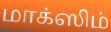
மாக்ஸிம்